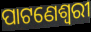
ପାଟଣେଶ୍ୱରୀ